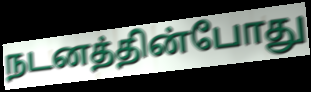
நடனத்தின்போது